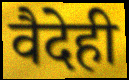
वैदेही